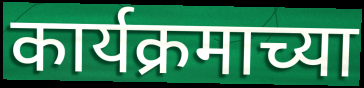
कार्यक्रमाच्या